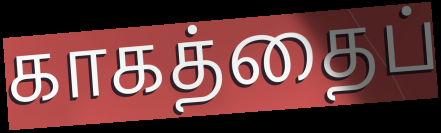
காகத்தைப்